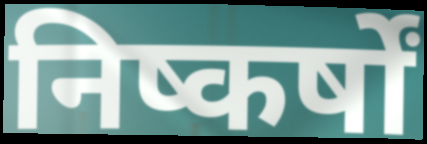
निष्कर्षों